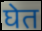
घेत